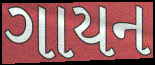
ગાયન